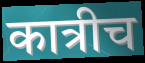
कात्रीच